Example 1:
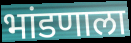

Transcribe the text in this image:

भांडणाला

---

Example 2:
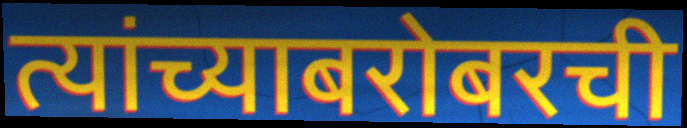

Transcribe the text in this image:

त्यांच्याबरोबरची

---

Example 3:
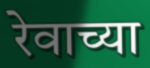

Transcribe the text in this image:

रेवाच्या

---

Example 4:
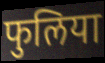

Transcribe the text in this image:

फुलिया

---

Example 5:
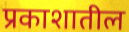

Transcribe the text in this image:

प्रकाशातील